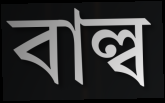
বাল্ব